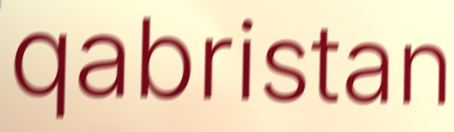
qabristan